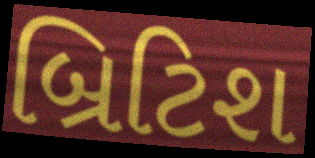
બ્રિટિશ